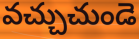
వచ్చుచుండె